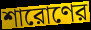
শারোণের